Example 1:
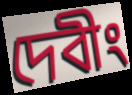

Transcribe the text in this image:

দেবীং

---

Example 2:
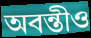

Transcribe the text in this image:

অবন্তীও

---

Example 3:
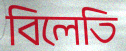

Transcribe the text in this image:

বিলেতি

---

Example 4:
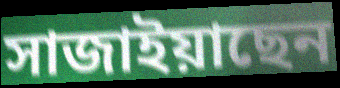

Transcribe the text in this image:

সাজাইয়াছেন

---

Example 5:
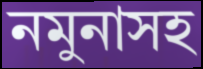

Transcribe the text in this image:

নমুনাসহ